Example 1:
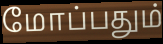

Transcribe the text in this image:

மோப்பதும்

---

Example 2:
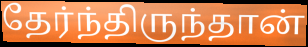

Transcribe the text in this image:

தேர்ந்திருந்தான்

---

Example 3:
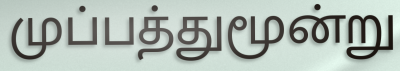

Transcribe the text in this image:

முப்பத்துமூன்று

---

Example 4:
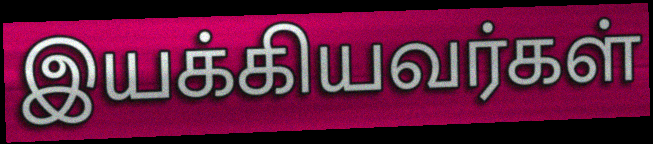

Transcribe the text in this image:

இயக்கியவர்கள்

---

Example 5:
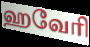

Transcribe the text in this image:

ஹவேரி